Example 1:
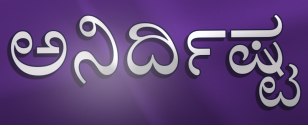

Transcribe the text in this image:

ಅನಿರ್ದಿಷ್ಟ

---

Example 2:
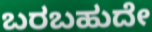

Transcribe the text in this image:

ಬರಬಹುದೇ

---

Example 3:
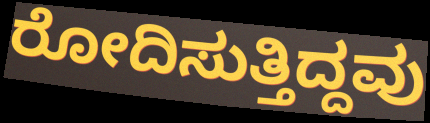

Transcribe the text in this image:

ರೋದಿಸುತ್ತಿದ್ದವು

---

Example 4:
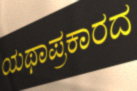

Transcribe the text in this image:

ಯಥಾಪ್ರಕಾರದ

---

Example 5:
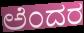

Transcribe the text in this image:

ಅೆಂದರ